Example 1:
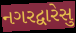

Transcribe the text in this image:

નગરદ્વારેસુ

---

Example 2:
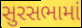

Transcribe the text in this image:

સુરસભામાં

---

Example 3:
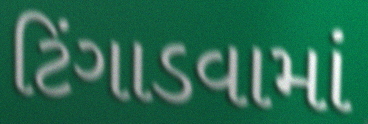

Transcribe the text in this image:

ટિંગાડવામાં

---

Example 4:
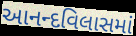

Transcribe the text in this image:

આનન્દવિલાસમાં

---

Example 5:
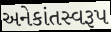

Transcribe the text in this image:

અનેકાંતસ્વરૂપ